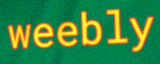
weebly